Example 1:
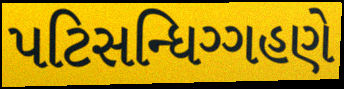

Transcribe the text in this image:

પટિસન્ધિગ્ગહણે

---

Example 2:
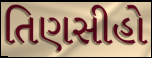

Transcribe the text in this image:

તિણસીહો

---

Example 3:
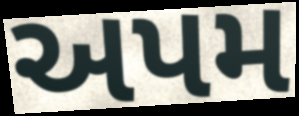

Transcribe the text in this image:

અપમ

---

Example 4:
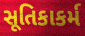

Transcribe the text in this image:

સૂતિકાકર્મ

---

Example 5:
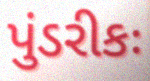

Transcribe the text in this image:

પુંડરીકઃ